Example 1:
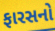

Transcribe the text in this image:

ફારસનો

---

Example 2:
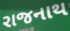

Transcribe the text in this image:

રાજનાથ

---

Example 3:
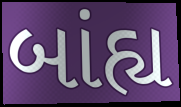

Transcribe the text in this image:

બાંહ્ય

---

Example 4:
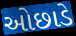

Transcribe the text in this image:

ઓછાડે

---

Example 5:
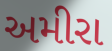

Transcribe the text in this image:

અમીરા